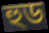
হুড